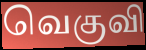
வெகுவி